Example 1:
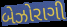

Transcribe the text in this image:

બેઝોરાગી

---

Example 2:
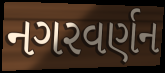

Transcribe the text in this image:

નગરવર્ણન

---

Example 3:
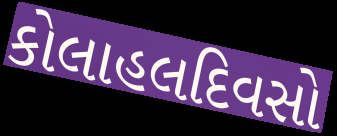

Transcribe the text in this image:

કોલાહલદિવસો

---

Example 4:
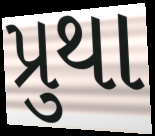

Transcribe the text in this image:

પ્રુથા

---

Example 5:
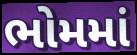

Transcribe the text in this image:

ભોમમાં